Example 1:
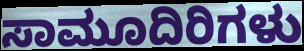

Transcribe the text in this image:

ಸಾಮೂದಿರಿಗಳು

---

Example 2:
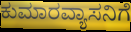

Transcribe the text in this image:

ಕುಮಾರವ್ಯಾಸನಿಗೆ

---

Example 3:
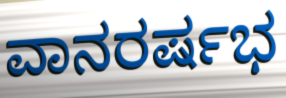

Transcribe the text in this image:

ವಾನರರ್ಷಭ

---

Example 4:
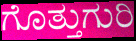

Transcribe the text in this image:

ಗೊತ್ತುಗುರಿ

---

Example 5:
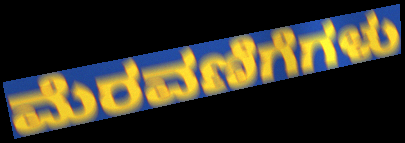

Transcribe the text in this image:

ಮೆರವಣಿಗೆಗಳು